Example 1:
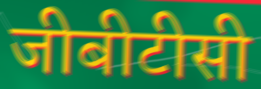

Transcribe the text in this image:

जीबीटीसी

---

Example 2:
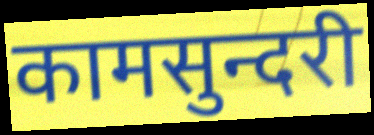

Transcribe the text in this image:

कामसुन्दरी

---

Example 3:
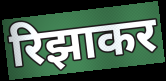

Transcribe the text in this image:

रिझाकर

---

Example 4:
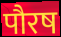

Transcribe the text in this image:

पौरष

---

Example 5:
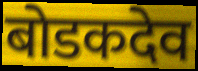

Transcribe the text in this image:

बोडकदेव